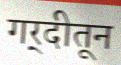
गर्दीतून